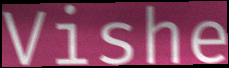
Vishe